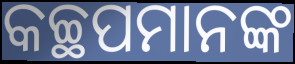
କଚ୍ଛପମାନଙ୍କ